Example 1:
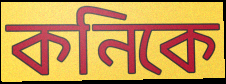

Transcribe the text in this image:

কনিকে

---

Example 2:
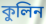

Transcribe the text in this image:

কুলিন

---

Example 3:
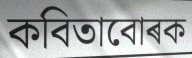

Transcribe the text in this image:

কবিতাবোৰক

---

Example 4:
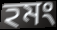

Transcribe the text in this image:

হমং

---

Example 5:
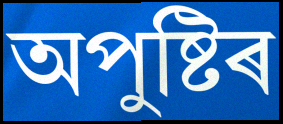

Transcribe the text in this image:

অপুষ্টিৰ